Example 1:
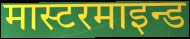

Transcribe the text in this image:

मास्टरमाइन्ड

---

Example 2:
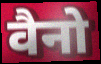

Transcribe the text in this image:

वैनो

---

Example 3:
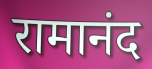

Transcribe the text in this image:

रामानंद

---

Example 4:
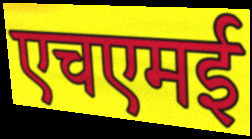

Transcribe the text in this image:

एचएमई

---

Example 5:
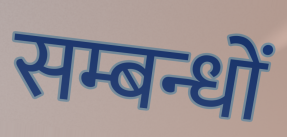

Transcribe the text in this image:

सम्बन्धों